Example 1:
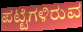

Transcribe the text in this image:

ಪಟ್ಟೆಗಳಿರುವ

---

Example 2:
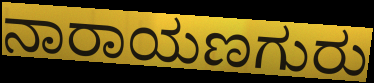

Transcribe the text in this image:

ನಾರಾಯಣಗುರು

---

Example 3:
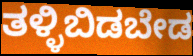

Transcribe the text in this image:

ತಳ್ಳಿಬಿಡಬೇಡ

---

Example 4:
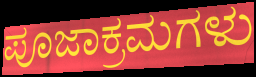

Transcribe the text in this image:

ಪೂಜಾಕ್ರಮಗಳು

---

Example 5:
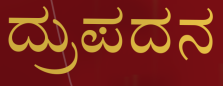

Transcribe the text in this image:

ದ್ರುಪದನ